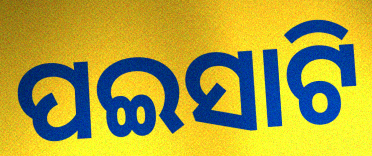
ପଇସାଟି